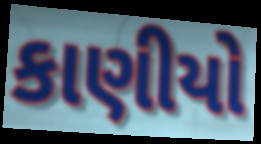
કાણીયો